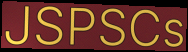
JSPSCs